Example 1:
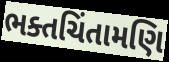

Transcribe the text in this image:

ભક્તચિંતામણિ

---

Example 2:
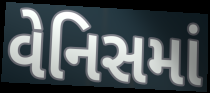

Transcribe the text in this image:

વેનિસમાં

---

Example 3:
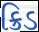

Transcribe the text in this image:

ક્રિડ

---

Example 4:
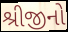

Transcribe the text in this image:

શ્રીજીનો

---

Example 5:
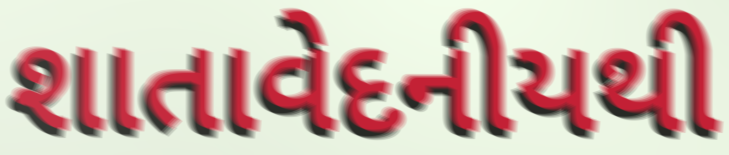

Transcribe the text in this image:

શાતાવેદનીયથી